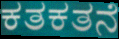
ಕತಕತನೆ